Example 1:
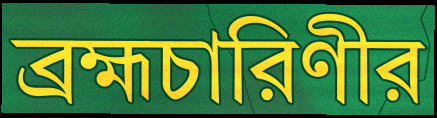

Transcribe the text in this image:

ব্রহ্মচারিণীর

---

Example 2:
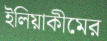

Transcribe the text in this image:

ইলিয়াকীমের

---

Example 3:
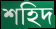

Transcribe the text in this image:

শহিদ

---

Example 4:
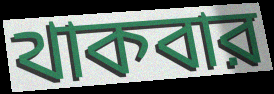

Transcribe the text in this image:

থাকবার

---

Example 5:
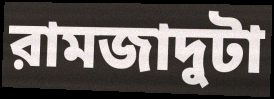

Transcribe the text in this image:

রামজাদুটা